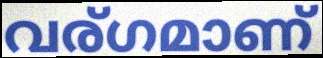
വര്ഗമാണ്